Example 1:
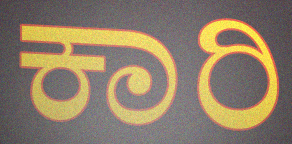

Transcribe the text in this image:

ಕಾರಿ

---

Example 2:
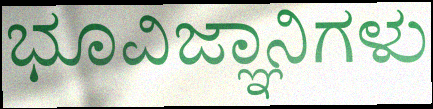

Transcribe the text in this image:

ಭೂವಿಜ್ಞಾನಿಗಳು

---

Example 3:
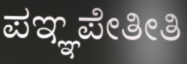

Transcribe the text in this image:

ಪಞ್ಞಪೇತೀತಿ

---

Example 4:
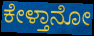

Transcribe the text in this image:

ಕೇಳ್ತಾನೋ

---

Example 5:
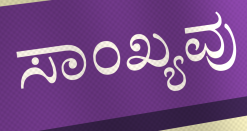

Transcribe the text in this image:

ಸಾಂಖ್ಯವು